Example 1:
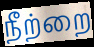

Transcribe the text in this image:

நீற்றை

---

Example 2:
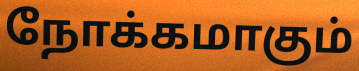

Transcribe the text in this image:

நோக்கமாகும்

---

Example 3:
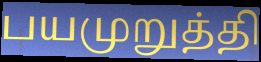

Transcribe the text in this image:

பயமுறுத்தி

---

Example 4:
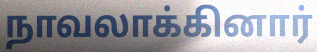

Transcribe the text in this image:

நாவலாக்கினார்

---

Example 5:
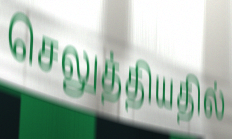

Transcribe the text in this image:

செலுத்தியதில்